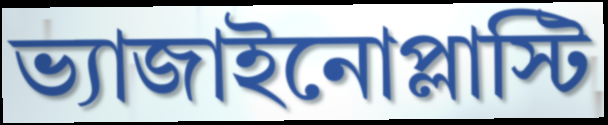
ভ্যাজাইনোপ্লাস্টি